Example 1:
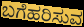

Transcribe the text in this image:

ಬಗೆಹರಿಸುವ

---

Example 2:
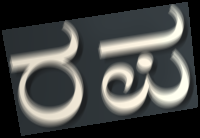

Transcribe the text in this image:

ರಪ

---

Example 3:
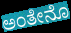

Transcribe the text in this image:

ಅಂತೇನೊ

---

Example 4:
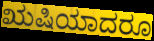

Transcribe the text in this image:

ಋಷಿಯಾದರೂ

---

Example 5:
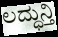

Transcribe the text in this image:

ಲದ್ಧುನ್ತಿ